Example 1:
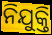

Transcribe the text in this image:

ନିଯୁକ୍ତି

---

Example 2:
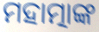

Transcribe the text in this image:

ମହାତ୍ମାଙ୍କ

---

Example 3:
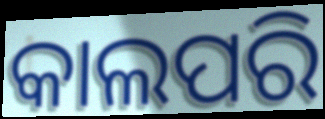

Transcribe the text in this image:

କାଲପରି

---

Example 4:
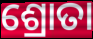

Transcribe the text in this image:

ଶ୍ରୋତା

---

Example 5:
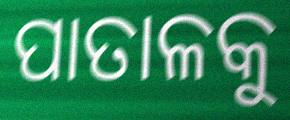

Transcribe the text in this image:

ପାତାଳକୁ